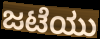
ಜಟೆಯು